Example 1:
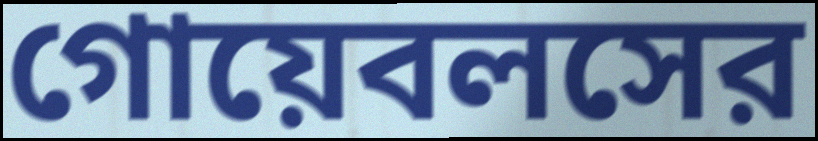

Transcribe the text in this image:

গোয়েবলসের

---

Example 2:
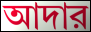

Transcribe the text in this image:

আদার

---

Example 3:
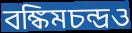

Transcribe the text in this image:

বঙ্কিমচন্দ্রও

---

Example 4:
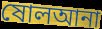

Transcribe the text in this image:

ষোলআনা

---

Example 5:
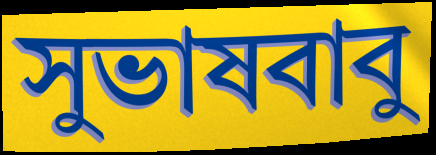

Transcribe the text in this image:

সুভাষবাবু